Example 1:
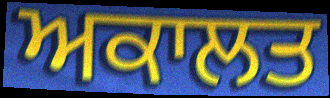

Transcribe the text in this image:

ਅਕਾਲਤ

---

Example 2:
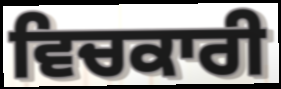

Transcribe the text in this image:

ਵਿਚਕਾਰੀ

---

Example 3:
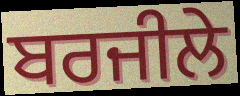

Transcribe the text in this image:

ਬਰਜੀਲੇ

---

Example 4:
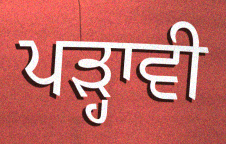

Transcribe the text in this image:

ਪੜ੍ਹਾਵੀ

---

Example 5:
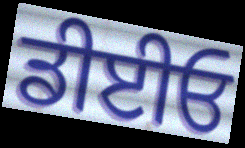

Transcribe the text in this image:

ਡੀਈਓ